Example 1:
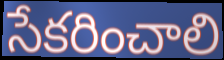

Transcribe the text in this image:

సేకరించాలి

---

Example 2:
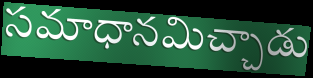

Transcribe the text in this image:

సమాధానమిచ్చాడు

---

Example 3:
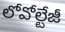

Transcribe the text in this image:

లోవోల్టేజీ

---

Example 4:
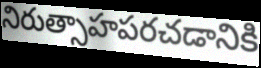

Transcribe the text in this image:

నిరుత్సాహపరచడానికి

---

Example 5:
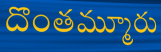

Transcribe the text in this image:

దొంతమ్మూరు